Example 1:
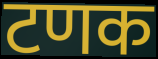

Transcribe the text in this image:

टणक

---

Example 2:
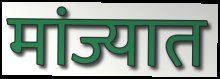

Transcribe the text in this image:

मांज्यात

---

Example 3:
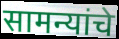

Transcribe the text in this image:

सामन्यांचे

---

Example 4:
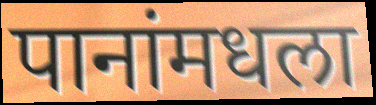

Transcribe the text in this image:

पानांमधला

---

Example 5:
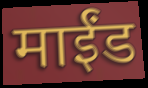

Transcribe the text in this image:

माईंड